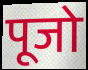
पूजो